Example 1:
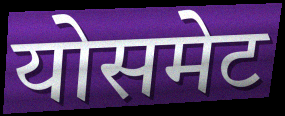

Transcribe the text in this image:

योसमेट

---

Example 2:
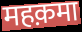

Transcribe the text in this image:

महक़मा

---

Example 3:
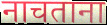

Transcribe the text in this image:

नाचताना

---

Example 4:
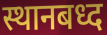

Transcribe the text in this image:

स्थानबध्द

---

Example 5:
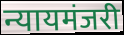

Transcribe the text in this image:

न्यायमंजरी